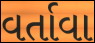
વર્તાવા